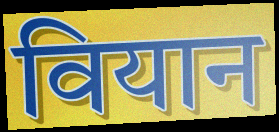
वियान